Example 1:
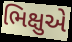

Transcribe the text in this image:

ભિક્ષુએ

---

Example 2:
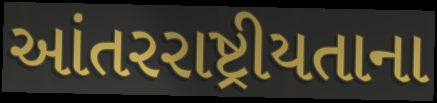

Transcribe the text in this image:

આંતરરાષ્ટ્રીયતાના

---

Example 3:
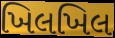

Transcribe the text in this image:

ખિલખિલ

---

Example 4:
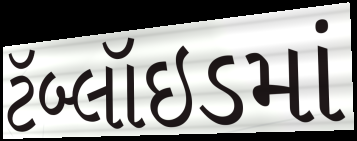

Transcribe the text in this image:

ટૅબ્લૉઇડમાં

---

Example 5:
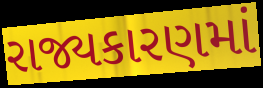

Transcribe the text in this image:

રાજ્યકારણમાં